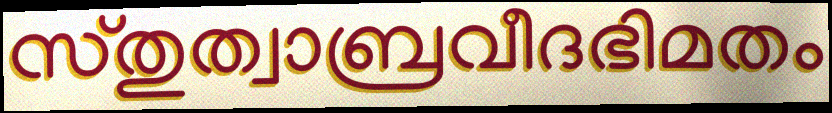
സ്തുത്വാബ്രവീദഭിമതം